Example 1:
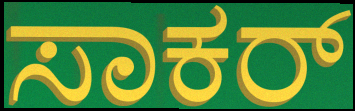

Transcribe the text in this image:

ಸಾಕರ್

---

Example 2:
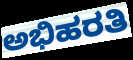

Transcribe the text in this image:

ಅಭಿಹರತಿ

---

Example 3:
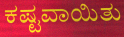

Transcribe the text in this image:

ಕಷ್ಟವಾಯಿತು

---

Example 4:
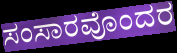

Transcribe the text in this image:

ಸಂಸಾರವೊಂದರ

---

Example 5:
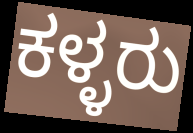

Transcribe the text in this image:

ಕಳ್ಳರು